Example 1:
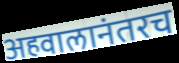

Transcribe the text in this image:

अहवालानंतरच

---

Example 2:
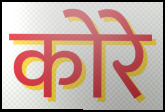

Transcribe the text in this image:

कोरे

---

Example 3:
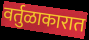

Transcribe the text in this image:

वर्तुळाकारात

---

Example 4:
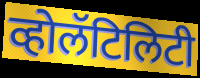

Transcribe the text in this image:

व्होलॅटिलिटी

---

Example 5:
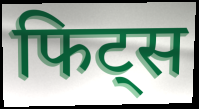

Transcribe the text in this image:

फिट्स